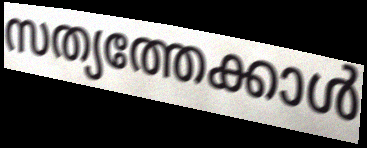
സത്യത്തേക്കാൾ